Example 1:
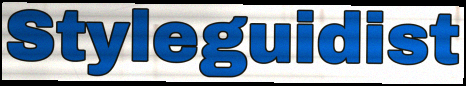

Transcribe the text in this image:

Styleguidist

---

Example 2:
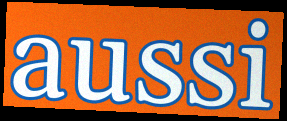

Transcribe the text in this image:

aussi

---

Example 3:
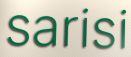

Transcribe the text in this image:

sarisi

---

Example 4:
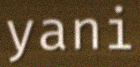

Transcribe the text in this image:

yani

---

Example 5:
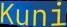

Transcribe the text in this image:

Kuni